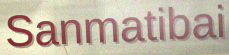
Sanmatibai